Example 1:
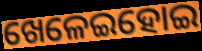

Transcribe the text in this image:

ଖେଳେଇହୋଇ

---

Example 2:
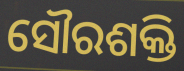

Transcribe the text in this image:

ସୌରଶକ୍ତି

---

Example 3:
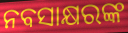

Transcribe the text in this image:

ନବସାକ୍ଷରଙ୍କ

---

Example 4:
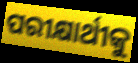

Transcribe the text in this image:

ପରୀକ୍ଷାର୍ଥୀକୁ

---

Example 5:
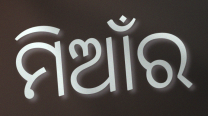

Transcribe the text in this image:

ମିଆଁର